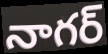
నాగర్